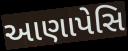
આણાપેસિ